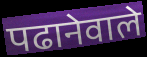
पढानेवाले